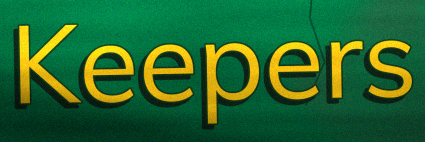
Keepers